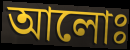
আলোঃ